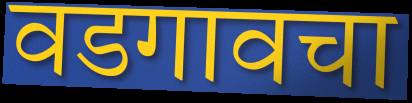
वडगावचा